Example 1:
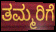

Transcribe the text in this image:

ತಮ್ಮರಿಗೆ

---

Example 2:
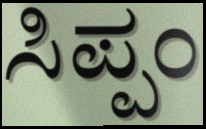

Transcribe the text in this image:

ಸಿಪ್ಪಂ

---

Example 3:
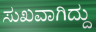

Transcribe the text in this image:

ಸುಖವಾಗಿದ್ದು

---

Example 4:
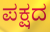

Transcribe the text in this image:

ಪಕ್ಷದ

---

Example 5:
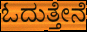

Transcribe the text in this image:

ಓದುತ್ತೇನೆ